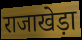
राजाखेड़ा